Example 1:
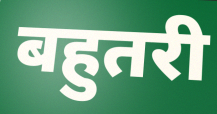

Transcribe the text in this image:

बहुतरी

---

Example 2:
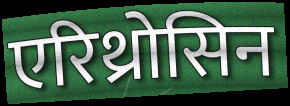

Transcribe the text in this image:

एरिथ्रोसिन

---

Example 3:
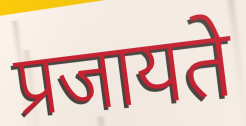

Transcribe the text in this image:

प्रजायते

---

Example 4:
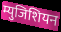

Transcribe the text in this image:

म्‍युजिशियन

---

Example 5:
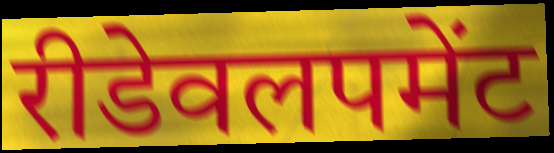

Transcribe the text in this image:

रीडेवलपमेंट